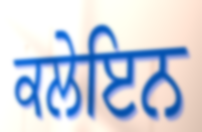
ਕਲੇਇਨ